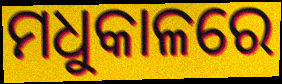
ମଧୁକାଳରେ